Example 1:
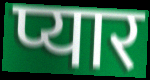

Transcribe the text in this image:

प्यार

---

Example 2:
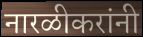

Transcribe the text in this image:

नारळीकरांनी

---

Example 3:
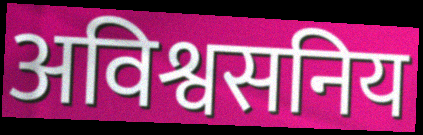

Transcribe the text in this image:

अविश्वसनिय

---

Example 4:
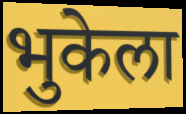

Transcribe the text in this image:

भुकेला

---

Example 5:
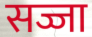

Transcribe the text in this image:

सज्जा